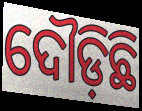
ଦୌଡ଼ିଛି